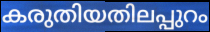
കരുതിയതിലപ്പുറം